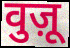
वुज़ू